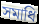
সমাধি